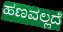
ಹಣವಲ್ಲದೆ